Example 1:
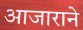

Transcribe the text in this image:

आजाराने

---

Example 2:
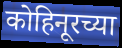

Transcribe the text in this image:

कोहिनूरच्या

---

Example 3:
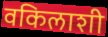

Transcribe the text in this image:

वकिलाशी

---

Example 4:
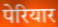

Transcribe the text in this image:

पेरियार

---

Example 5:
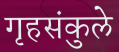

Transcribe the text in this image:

गृहसंकुले